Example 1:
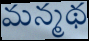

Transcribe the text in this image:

మన్మథ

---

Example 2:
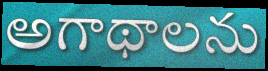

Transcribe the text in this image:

అగాథాలను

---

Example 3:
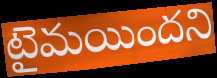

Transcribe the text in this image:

టైమయిందని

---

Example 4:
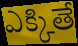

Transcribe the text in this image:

ఎక్కితే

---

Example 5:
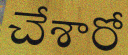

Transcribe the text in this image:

చేశారో